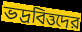
ভদ্রবিত্তদের